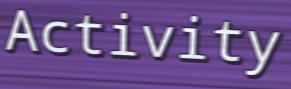
Activity